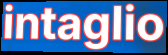
intaglio